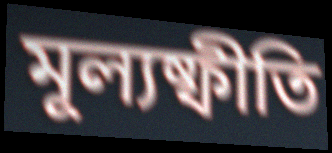
মূল্যষ্ফীতি